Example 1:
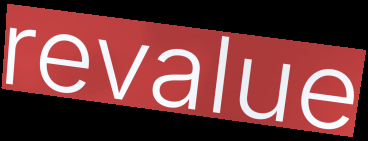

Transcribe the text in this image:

revalue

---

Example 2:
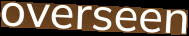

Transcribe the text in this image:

overseen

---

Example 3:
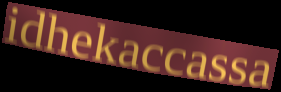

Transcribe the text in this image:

idhekaccassa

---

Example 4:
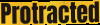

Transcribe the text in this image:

Protracted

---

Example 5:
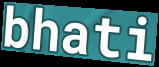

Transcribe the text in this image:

bhati